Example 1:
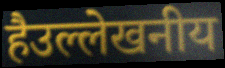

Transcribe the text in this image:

हैउल्लेखनीय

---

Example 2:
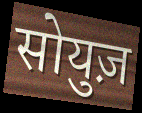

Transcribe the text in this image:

सोयुज़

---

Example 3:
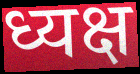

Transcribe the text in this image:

ध्यक्ष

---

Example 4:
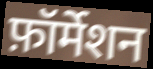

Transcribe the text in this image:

फ़ॉर्मेशन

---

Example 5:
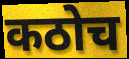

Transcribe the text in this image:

कठोच